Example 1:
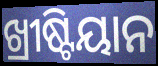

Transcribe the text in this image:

ଖ୍ରୀଷ୍ଟିୟାନ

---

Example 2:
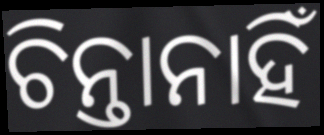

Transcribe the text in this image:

ଚିନ୍ତାନାହିଁ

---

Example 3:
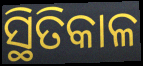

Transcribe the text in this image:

ସ୍ଥିତିକାଳ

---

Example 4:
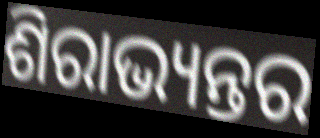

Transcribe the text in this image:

ଶିରାଭ୍ୟନ୍ତର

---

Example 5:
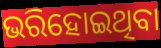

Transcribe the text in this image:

ଭରିହୋଇଥିବା